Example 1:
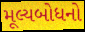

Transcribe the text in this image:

મૂલ્યબોધનો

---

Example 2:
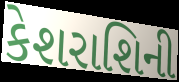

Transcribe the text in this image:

કેશરાશિની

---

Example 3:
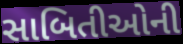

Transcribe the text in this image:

સાબિતીઓની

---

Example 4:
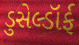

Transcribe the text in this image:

ડુસેલ્ડૉર્ફ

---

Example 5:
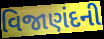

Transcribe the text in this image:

વિજાણંદની